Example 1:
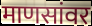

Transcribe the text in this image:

माणसांवर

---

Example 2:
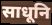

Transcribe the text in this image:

साधूनि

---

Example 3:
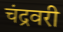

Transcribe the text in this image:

चंद्रवरी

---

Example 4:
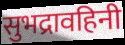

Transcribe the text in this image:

सुभद्रावहिनी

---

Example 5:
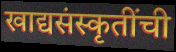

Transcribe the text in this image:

खाद्यसंस्कृतींची